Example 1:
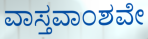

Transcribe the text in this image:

ವಾಸ್ತವಾಂಶವೇ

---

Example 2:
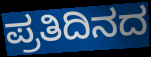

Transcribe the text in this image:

ಪ್ರತಿದಿನದ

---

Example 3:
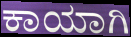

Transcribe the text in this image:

ಕಾಯಾಗಿ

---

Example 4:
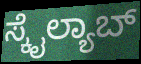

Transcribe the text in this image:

ಸ್ಕೈಲ್ಯಾಬ್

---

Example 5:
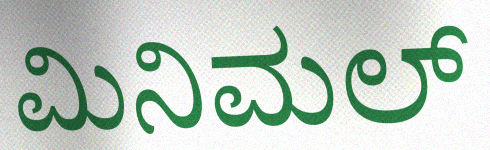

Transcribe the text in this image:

ಮಿನಿಮಲ್